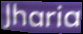
Jharia